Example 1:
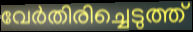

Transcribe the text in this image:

വേർതിരിച്ചെടുത്ത്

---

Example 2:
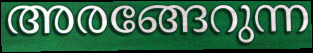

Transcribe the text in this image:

അരങ്ങേറുന്ന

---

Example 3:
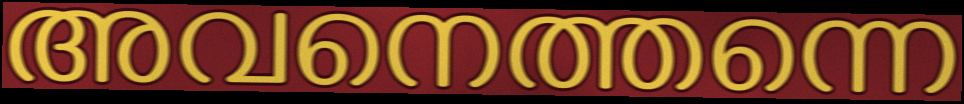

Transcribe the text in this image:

അവനെത്തന്നെ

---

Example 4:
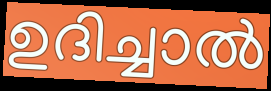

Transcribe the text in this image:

ഉദിച്ചാൽ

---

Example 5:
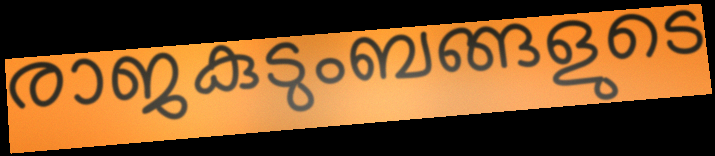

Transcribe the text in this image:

രാജകുടുംബങ്ങളുടെ